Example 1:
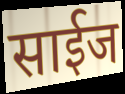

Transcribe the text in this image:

साईज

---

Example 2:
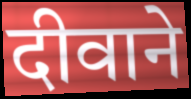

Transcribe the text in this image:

दीवाने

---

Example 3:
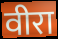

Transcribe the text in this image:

वीरा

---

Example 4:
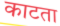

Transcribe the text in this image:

काटता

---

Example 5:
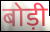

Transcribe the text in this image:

बोड़ी